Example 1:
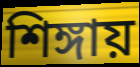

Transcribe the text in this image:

শিঙ্গায়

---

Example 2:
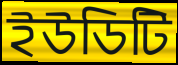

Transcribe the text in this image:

ইউডিটি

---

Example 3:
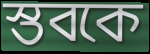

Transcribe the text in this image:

স্তবকে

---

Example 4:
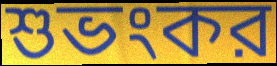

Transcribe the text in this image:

শুভংকর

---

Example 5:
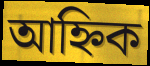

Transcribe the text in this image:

আহ্নিক